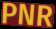
PNR